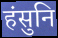
हंसुनि